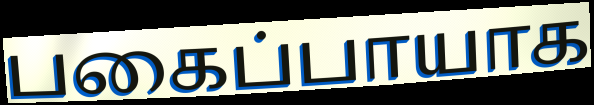
பகைப்பாயாக